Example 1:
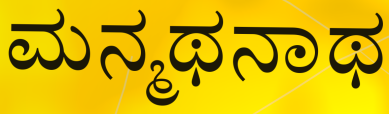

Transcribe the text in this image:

ಮನ್ಮಥನಾಥ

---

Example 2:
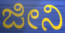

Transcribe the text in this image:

ಜೀನಿ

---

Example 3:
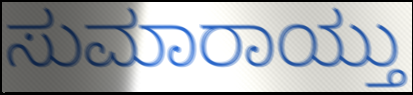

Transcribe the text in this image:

ಸುಮಾರಾಯ್ತು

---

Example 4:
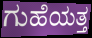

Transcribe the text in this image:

ಗುಹೆಯತ್ತ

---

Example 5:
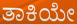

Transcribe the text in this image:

ತಾಕಿಯೇ